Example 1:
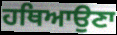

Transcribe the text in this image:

ਹਥਿਆਉਣਾ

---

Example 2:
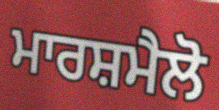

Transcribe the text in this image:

ਮਾਰਸ਼ਮੈਲੋ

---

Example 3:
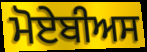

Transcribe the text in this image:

ਮੋਏਬੀਅਸ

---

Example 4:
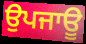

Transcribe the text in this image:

ਉਪਜਾਊ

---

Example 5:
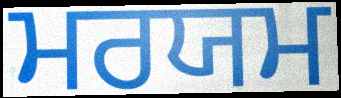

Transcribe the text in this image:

ਮਰਯਮ